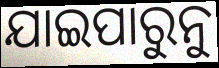
ଯାଇପାରୁନୁ